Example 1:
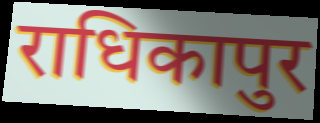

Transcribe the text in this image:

राधिकापुर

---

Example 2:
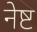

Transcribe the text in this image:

नेष्ट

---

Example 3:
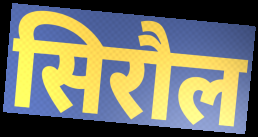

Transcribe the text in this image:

सिरौल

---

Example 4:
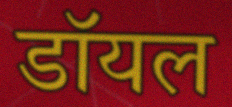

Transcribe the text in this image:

डॉयल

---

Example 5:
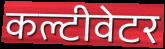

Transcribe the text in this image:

कल्टीवेटर